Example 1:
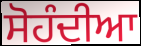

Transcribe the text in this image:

ਸੋਹੰਦੀਆ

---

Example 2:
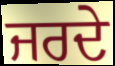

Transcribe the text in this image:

ਜਰਦੇ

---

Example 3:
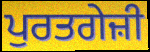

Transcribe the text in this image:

ਪੁਰਤਗੇਜ਼ੀ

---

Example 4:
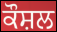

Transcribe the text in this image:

ਕੌਸ਼ਲ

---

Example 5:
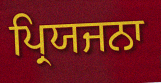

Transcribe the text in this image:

ਪ੍ਰਿਯਜਨਾ